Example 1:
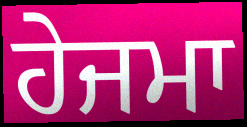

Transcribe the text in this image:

ਹੇਜਮਾ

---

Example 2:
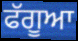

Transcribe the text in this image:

ਫੱਗੂਆ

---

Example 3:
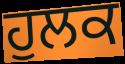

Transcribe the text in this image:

ਹੁਲਕ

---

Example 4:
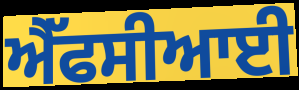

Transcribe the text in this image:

ਐੱਫਸੀਆਈ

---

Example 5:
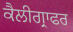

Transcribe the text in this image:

ਕੈਲੀਗ੍ਰਾਫਰ